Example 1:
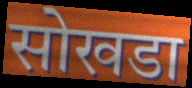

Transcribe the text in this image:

सोखडा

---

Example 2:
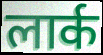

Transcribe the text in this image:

लार्क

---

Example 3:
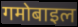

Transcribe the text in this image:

गमोबाइल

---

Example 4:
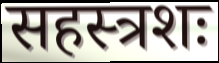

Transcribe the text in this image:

सहस्त्रशः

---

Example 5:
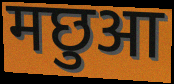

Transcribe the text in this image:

मछुआ